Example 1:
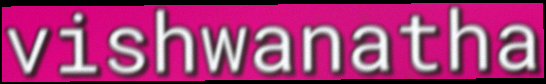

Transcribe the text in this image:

vishwanatha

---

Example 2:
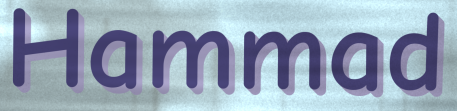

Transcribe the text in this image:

Hammad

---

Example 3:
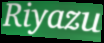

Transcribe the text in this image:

Riyazu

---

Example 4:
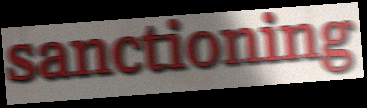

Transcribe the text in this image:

sanctioning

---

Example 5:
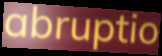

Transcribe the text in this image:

abruptio